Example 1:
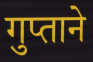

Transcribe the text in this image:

गुप्ताने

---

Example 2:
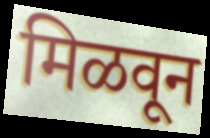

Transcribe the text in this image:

मिळवून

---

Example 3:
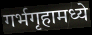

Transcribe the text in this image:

गर्भगृहामध्ये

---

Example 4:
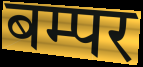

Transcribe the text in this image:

बम्पर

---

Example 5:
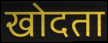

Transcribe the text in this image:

खोदता